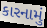
કારનામું